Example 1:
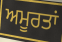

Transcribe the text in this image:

ਅਮੂਰਤਾਂ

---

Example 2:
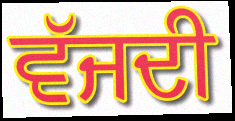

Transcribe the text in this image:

ਵੱਜਦੀ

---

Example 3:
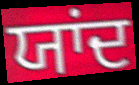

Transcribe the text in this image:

ਯਾਂਦ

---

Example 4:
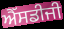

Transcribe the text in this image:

ਐੱਸਡੀਜੀ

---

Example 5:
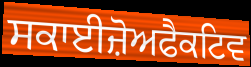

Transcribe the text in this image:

ਸਕਾਈਜ਼ੋਅਫੈਕਟਿਵ